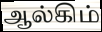
ஆல்கிம்